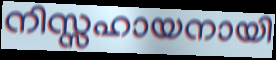
നിസ്സഹായനായി